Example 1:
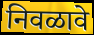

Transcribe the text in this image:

निवळावे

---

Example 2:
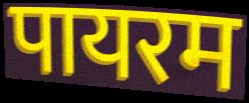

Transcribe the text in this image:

पायरम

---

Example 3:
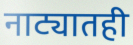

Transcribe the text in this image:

नाट्यातही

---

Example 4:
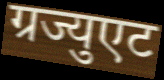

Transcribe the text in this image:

ग्रज्युएट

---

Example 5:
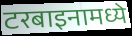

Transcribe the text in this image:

टरबाइनामध्ये